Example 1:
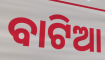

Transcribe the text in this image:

ବାଟିଆ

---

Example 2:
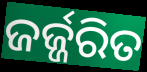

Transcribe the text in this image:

ଜର୍ଜ୍ଜରିତ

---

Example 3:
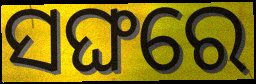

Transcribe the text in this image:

ସଙ୍ଘରେ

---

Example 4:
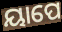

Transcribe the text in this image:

ୟାପେ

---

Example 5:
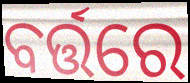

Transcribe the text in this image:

ବର୍ତ୍ତରେ